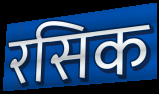
रसिक